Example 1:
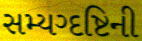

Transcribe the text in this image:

સમ્યગ્દષ્ટિની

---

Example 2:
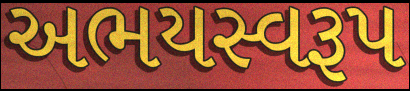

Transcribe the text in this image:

અભયસ્વરૂપ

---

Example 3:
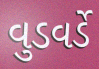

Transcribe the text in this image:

વુડવર્ડે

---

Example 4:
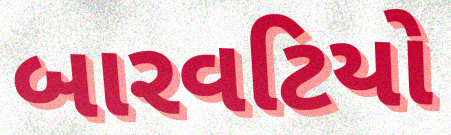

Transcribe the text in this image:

બારવટિયો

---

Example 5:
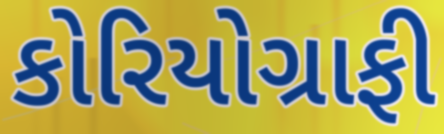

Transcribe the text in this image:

કોરિયોગ્રાફી